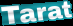
Tarat